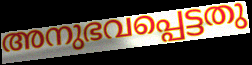
അനുഭവപ്പെട്ടതു